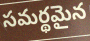
సమర్థమైన